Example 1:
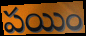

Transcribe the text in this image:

పయిం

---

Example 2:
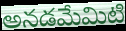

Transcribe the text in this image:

అనడమేమిటి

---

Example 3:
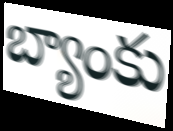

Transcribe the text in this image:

బ్యాంకు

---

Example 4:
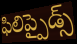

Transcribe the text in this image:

ఫిలిప్పైడ్స్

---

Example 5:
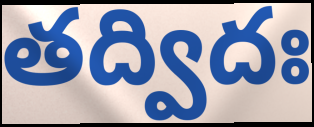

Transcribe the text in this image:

తద్విదః